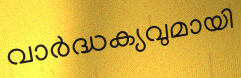
വാർദ്ധക്യവുമായി